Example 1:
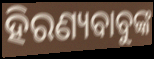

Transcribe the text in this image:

ହିରଣ୍ୟବାବୁଙ୍କ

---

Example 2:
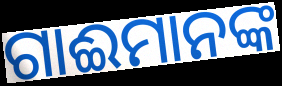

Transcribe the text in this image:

ଗାଈମାନଙ୍କ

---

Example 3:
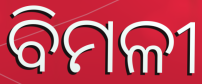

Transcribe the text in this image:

ବିମଳୀ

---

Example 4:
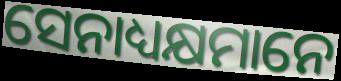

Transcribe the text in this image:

ସେନାଧ୍ୟକ୍ଷମାନେ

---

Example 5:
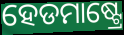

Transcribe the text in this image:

ହେଡମାଷ୍ଟ୍ରେ